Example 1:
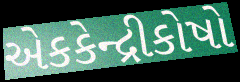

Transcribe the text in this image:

એકકેન્દ્રીકોષો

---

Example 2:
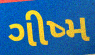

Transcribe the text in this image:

ગીષ્મ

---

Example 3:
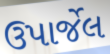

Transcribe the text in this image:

ઉપાર્જેલ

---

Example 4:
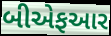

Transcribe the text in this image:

બીએફઆર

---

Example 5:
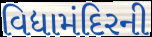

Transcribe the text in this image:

વિદ્યામંદિરની